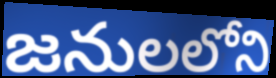
జనులలోని